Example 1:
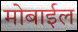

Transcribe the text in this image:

मोबाईल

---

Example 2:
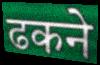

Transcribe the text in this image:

ढकने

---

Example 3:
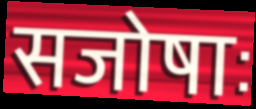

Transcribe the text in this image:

सजोषाः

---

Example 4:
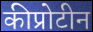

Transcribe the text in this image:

कीप्रोटीन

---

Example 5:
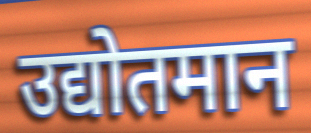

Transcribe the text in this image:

उद्योतमान